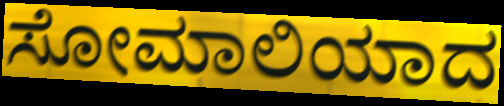
ಸೋಮಾಲಿಯಾದ